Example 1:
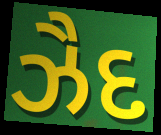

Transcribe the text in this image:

ઝૈદ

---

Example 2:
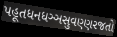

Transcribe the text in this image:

પહૂતધનધઞ્ઞસુવણ્ણરજતો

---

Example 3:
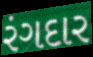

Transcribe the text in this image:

રંગદાર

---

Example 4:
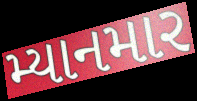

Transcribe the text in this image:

મ્યાનમાર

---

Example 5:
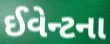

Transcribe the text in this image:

ઈવેન્ટના